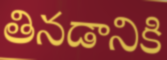
తినడానికి